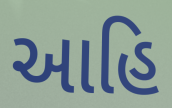
આહિ